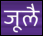
जूलै